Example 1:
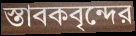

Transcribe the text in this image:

স্তাবকবৃন্দের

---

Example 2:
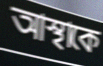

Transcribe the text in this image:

আস্থাকে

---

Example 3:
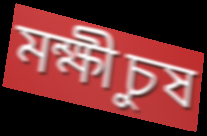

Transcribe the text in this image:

মক্ষীচুষ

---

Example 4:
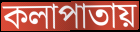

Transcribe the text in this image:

কলাপাতায়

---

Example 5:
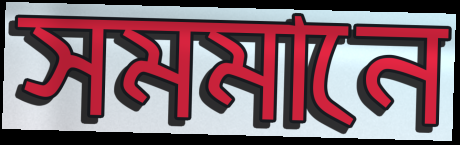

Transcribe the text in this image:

সমমানে